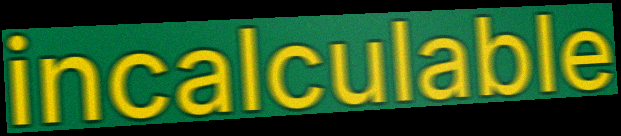
incalculable